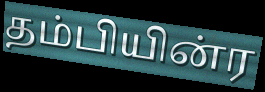
தம்பியின்ர